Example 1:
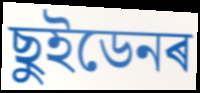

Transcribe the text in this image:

ছুইডেনৰ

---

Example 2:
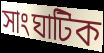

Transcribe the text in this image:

সাংঘাটিক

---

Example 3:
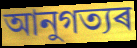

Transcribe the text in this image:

আনুগত্যৰ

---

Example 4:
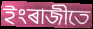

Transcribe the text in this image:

ইংৰাজীতে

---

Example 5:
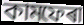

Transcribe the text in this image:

কামফেৰা